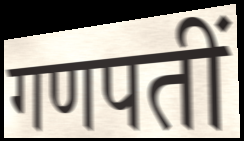
गणपतीं